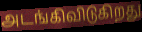
அடங்கிவிடுகிறது